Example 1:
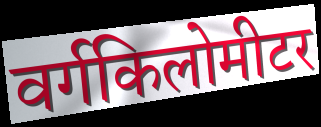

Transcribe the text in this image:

वर्गकिलोमीटर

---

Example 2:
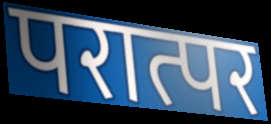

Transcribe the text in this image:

परात्‍पर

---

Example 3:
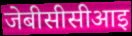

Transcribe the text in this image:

जेबीसीसीआइ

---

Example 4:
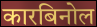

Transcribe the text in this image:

कारबिनोल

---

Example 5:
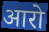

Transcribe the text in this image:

आरो